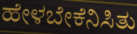
ಹೇಳಬೇಕೆನಿಸಿತು